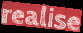
realise